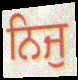
ਨਿਜੁ